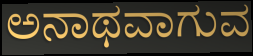
ಅನಾಥವಾಗುವ